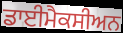
ਡਾਈਮੈਕਸੀਅਨ